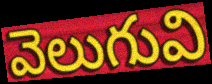
వెలుగువి